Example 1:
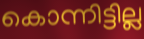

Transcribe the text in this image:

കൊന്നിട്ടില്ല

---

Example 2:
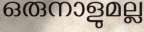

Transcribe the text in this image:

ഒരുനാളുമല്ല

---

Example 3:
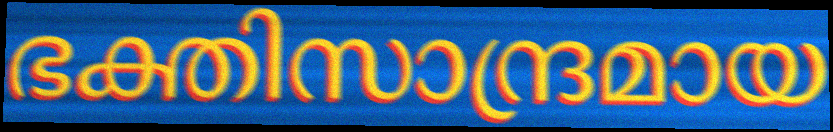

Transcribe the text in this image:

ഭക്തിസാന്ദ്രമായ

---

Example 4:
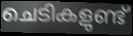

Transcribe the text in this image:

ചെടികളുണ്ട്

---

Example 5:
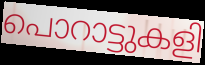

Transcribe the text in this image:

പൊറാട്ടുകളി